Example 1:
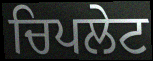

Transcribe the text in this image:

ਚਿਪਲੇਟ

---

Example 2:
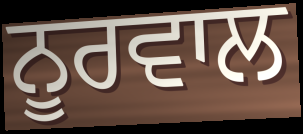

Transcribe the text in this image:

ਨੂਰਵਾਲ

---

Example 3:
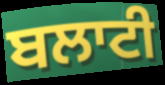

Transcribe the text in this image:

ਬਲਾਟੀ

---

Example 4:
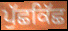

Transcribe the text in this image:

ਪੁੱਛਕਿੱਛ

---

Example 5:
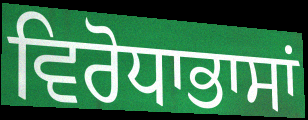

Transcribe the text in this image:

ਵਿਰੋਧਾਭਾਸਾਂ